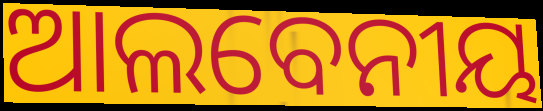
ଆଲବେନୀୟ